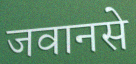
जवानसे